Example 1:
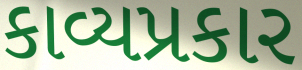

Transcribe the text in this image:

કાવ્યપ્રકાર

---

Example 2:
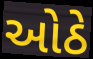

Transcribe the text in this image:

ઓઠે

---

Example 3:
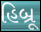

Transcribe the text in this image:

હિબ્રૂ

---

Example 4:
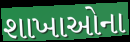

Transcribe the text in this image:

શાખાઓના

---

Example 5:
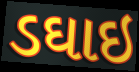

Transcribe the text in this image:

ડઘાઇ